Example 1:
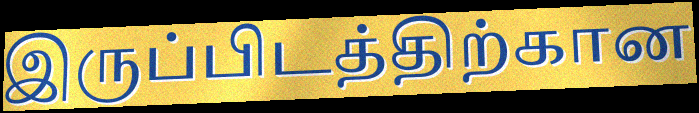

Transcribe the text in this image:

இருப்பிடத்திற்கான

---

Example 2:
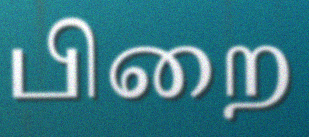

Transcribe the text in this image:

பிறை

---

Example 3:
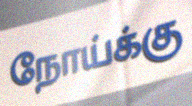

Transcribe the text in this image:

நோய்க்கு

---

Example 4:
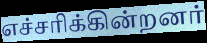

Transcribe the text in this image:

எச்சரிக்கின்றனர்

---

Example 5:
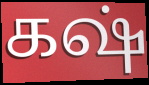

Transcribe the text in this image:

கஷ்